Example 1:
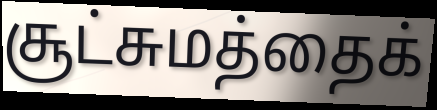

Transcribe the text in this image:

சூட்சுமத்தைக்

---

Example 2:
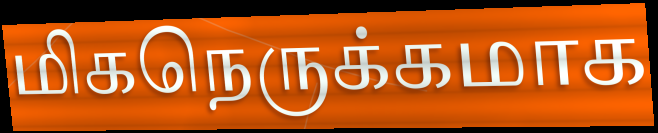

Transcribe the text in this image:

மிகநெருக்கமாக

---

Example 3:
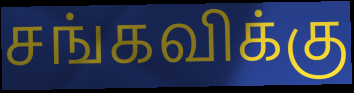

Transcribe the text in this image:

சங்கவிக்கு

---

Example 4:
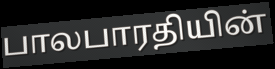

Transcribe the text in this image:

பாலபாரதியின்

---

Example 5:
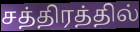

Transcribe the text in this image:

சத்திரத்தில்